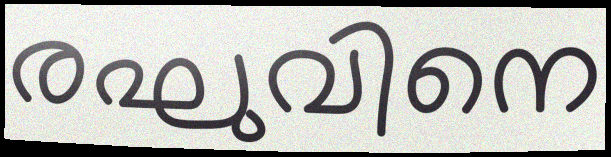
രഘുവിനെ